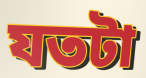
যতটা